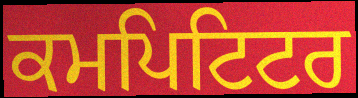
ਕਮਪਿਟਿਟਰ